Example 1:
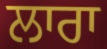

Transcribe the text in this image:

ਲਾਰਾ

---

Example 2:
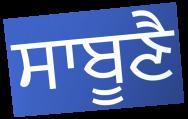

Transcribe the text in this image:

ਸਾਬੂਣੈ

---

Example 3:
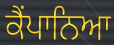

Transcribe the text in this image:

ਕੈਂਪਾਨਿਆ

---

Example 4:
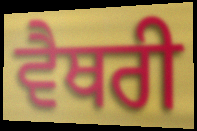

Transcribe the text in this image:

ਵੈਥਰੀ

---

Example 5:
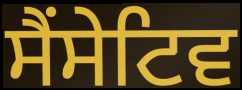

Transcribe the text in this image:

ਸੈਂਸੇਟਿਵ